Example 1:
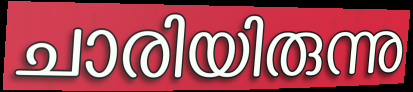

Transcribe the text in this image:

ചാരിയിരുന്നു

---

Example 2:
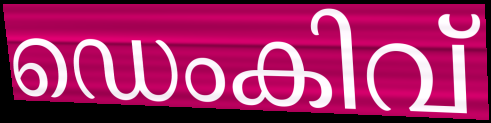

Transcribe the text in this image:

ഡെംകിവ്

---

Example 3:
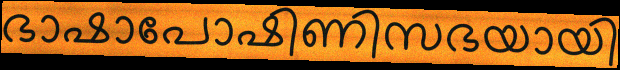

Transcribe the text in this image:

ഭാഷാപോഷിണിസഭയായി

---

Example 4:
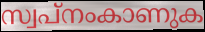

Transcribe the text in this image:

സ്വപ്നംകാണുക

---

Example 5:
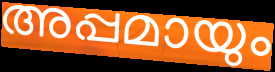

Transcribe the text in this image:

അപ്പമായും